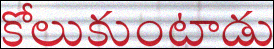
కోలుకుంటాడు